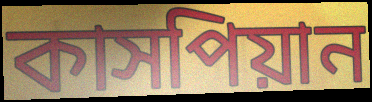
কাসপিয়ান